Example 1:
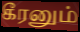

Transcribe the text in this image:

கீரனும்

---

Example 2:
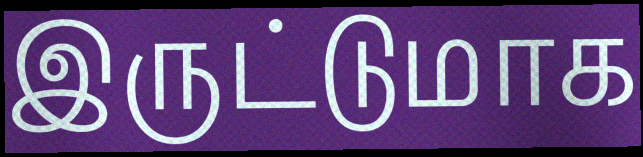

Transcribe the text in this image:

இருட்டுமாக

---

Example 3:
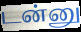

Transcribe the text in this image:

டன்னு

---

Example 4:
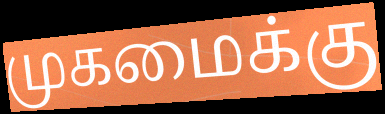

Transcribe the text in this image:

முகமைக்கு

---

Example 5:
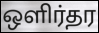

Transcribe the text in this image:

ஒளிர்தர